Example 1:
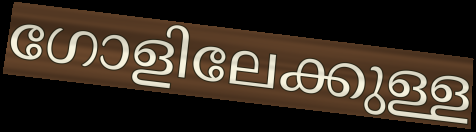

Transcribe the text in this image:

ഗോളിലേക്കുള്ള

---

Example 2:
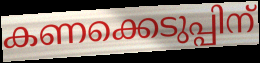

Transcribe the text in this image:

കണക്കെടുപ്പിന്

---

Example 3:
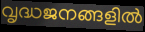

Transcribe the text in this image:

വൃദ്ധജനങ്ങളിൽ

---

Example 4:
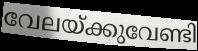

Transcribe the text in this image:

വേലയ്ക്കുവേണ്ടി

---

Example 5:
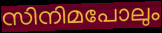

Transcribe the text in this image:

സിനിമപോലും